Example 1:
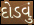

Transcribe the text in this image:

દોડવું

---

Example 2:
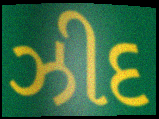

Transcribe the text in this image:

ઝીદ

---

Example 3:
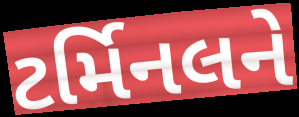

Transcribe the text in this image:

ટર્મિનલને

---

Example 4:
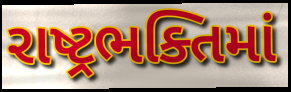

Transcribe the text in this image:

રાષ્ટ્રભક્તિમાં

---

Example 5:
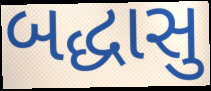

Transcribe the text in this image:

બદ્ધાસુ